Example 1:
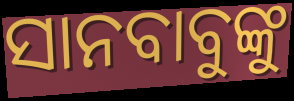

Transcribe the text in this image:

ସାନବାବୁଙ୍କୁ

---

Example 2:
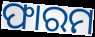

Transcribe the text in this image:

ଫାରମ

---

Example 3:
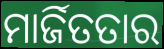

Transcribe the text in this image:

ମାର୍ଜିତତାର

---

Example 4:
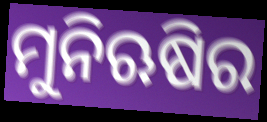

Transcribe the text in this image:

ମୁନିଋଷିର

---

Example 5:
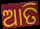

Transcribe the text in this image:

ଆତି